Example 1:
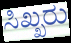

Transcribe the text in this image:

ಸಿಖ್ಖರು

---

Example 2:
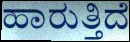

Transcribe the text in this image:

ಹಾರುತ್ತಿದೆ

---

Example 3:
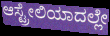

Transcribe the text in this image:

ಆಸ್ಟ್ರೇಲಿಯಾದಲ್ಲೇ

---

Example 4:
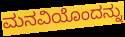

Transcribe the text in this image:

ಮನವಿಯೊಂದನ್ನು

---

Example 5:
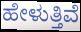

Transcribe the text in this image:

ಹೇಳುತ್ತಿವೆ